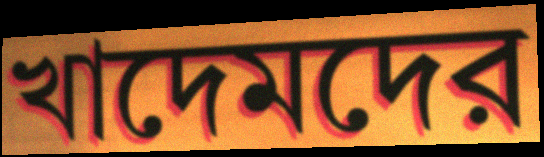
খাদেমদের